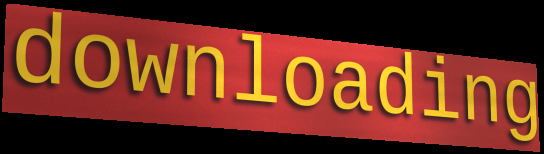
downloading